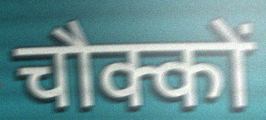
चौक्कों